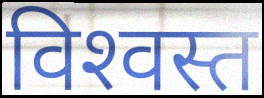
विश्‍वस्त